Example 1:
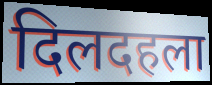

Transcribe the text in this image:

दिलदहला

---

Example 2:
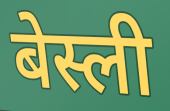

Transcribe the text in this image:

बेस्ली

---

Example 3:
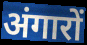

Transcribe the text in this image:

अंगारों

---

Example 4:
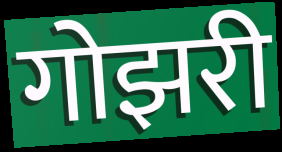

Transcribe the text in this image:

गोझरी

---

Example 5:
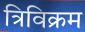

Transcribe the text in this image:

त्रिविक्रम